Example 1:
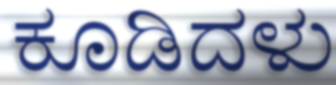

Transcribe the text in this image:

ಕೂಡಿದಳು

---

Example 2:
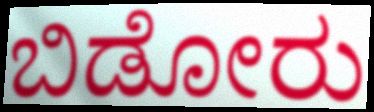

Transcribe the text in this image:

ಬಿಡೋರು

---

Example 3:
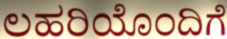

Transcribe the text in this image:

ಲಹರಿಯೊಂದಿಗೆ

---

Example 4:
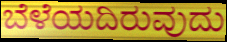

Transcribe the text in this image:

ಬೆಳೆಯದಿರುವುದು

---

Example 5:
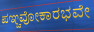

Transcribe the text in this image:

ಪಞ್ಚವೋಕಾರಭವೇ